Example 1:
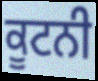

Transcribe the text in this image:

ਕੂਟਨੀ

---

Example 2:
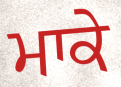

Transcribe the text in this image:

ਮਾਕੇ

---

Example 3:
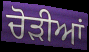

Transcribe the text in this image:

ਚੋੜੀਆਂ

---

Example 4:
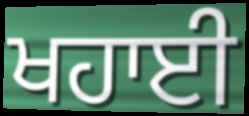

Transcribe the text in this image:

ਖਹਾਈ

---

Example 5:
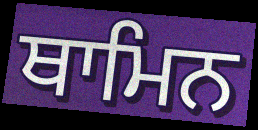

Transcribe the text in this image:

ਥਾਮਿਨ